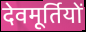
देवमूर्तियों